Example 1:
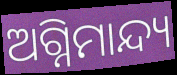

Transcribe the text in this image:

ଅଗ୍ନିମାନ୍ଦ୍ୟ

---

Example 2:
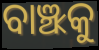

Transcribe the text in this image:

ବାଞ୍ଝକୁ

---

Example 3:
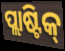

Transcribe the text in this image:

ପ୍ଲାଷ୍ଟିକ୍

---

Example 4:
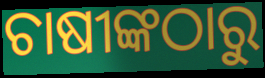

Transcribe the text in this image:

ଚାଷୀଙ୍କଠାରୁ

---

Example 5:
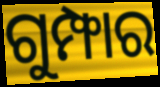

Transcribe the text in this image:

ଗୁମ୍ଫାର